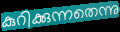
കുറിക്കുന്നതെന്നു